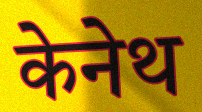
केनेथ